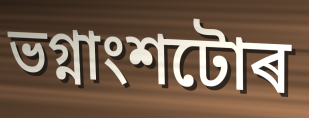
ভগ্নাংশটোৰ